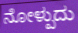
ನೋಳ್ಪುದು